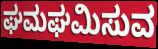
ಘಮಘಮಿಸುವ